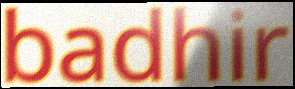
badhir